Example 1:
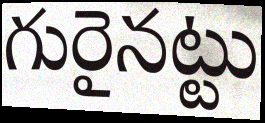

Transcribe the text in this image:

గురైనట్టు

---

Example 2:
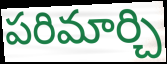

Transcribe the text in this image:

పరిమార్చి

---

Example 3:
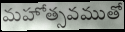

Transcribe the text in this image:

మహోత్సవముతో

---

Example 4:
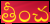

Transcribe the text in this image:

తీంచ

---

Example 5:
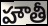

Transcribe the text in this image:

హౌతీ